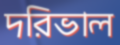
দরিভাল